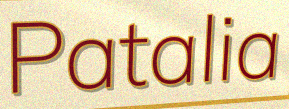
Patalia